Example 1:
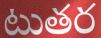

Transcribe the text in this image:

టుతర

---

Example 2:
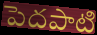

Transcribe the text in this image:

పెదపాటి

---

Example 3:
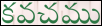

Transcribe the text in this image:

కవచము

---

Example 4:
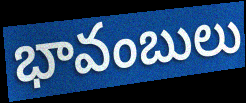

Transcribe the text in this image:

భావంబులు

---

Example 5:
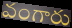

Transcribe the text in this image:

వంగారు